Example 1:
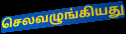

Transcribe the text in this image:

செலவழுங்கியது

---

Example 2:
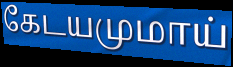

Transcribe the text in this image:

கேடயமுமாய்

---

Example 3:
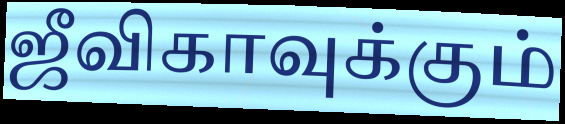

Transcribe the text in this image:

ஜீவிகாவுக்கும்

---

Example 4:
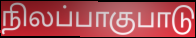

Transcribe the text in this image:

நிலப்பாகுபாடு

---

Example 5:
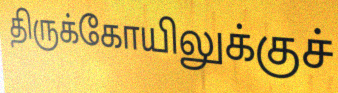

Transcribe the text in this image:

திருக்கோயிலுக்குச்